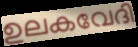
ഉലകവേദി